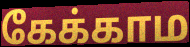
கேக்காம